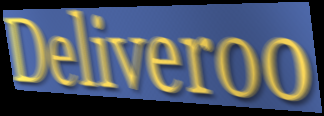
Deliveroo